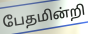
பேதமின்றி